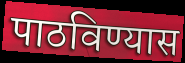
पाठविण्यास